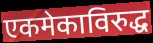
एकमेकाविरुद्ध